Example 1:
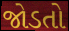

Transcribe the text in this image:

જોડતો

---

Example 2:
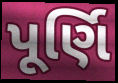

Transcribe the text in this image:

પૂર્ણિ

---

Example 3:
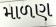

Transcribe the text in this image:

માળણ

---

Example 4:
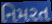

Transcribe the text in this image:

નિમરત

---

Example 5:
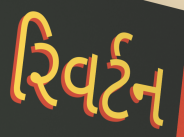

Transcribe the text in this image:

રિવર્ટન